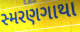
સ્મરણગાથા